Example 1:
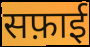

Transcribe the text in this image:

सफ़ाई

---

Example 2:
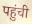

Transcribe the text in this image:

पहुंची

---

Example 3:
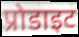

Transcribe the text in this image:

प्रोडाइट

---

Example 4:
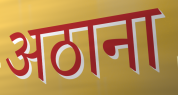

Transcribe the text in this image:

अठाना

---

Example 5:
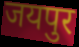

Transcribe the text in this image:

जयपुर